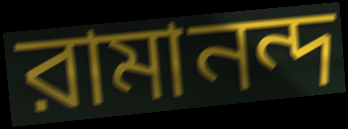
রামানন্দ